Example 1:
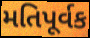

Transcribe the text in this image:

મતિપૂર્વક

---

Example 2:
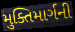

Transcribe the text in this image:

મુક્તિમાર્ગની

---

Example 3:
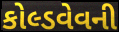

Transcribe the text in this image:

કોલ્ડવેવની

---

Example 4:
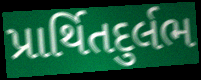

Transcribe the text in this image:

પ્રાર્થિતદુર્લભ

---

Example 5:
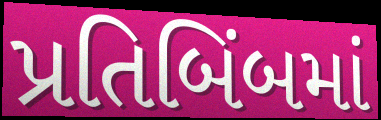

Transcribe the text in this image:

પ્રતિબિંબમાં